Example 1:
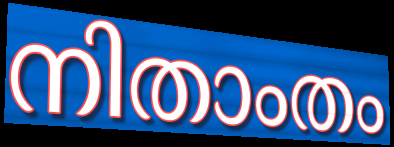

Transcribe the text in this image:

നിതാംതം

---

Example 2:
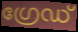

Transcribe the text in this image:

ഗ്രേഡ്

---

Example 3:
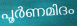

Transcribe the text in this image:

പൂർണമിദം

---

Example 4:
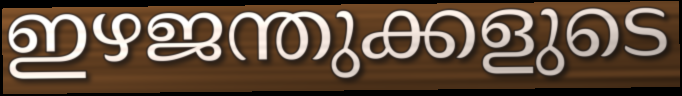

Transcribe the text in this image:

ഇഴജന്തുക്കളുടെ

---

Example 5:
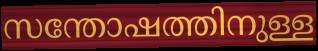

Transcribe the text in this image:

സന്തോഷത്തിനുള്ള